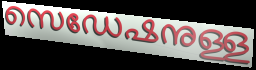
സെഡേഷനുള്ള